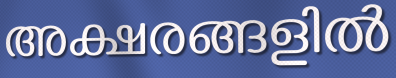
അക്ഷരങ്ങളിൽ